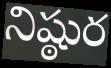
నిష్ఠుర